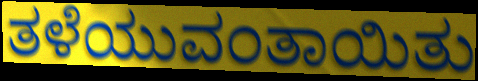
ತಳೆಯುವಂತಾಯಿತು